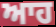
ਆਹ